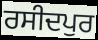
ਰਸੀਦਪੁਰ